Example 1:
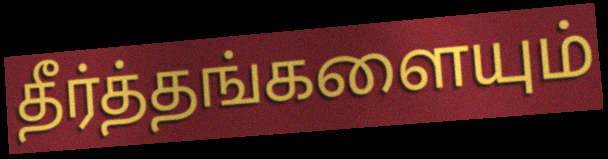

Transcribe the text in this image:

தீர்த்தங்களையும்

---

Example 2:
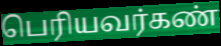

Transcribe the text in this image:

பெரியவர்கண்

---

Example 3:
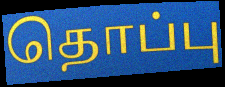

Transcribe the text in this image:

தொப்பு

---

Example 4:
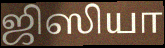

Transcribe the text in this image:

ஜிஸியா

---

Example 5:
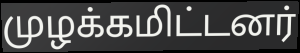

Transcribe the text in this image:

முழக்கமிட்டனர்